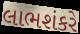
લાભશંકરે